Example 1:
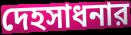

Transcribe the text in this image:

দেহসাধনার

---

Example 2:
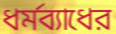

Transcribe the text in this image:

ধর্মব্যাধের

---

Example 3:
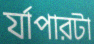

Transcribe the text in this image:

র্যাপারটা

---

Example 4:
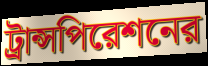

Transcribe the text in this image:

ট্রান্সপিরেশনের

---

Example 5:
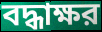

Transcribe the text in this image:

বদ্ধাক্ষর